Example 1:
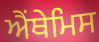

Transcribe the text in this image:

ਐਂਥੇਮਿਸ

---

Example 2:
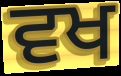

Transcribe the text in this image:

ਵਖ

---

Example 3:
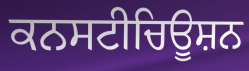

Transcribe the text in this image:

ਕਨਸਟੀਚਿਊਸ਼ਨ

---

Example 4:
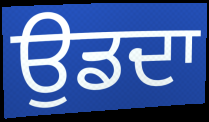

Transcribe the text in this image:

ਉਡਦਾ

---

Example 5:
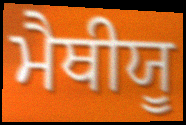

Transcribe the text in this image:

ਮੈਥੀਯੂ